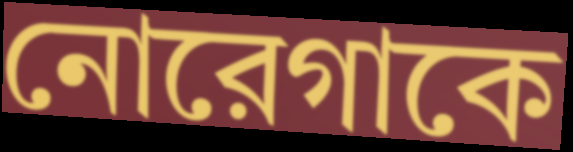
নোরেগাকে